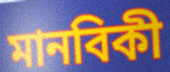
মানবিকী